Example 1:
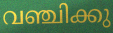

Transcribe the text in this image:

വഞ്ചിക്കു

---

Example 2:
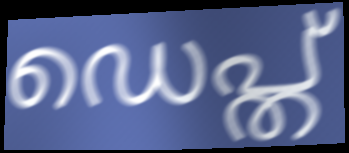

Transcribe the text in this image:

ഡെപ്ത്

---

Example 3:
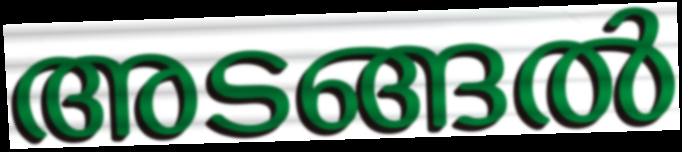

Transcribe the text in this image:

അടങ്ങൽ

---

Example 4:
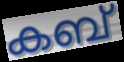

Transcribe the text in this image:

കബ്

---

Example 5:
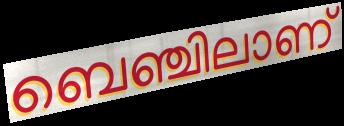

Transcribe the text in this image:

ബെഞ്ചിലാണ്